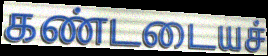
கண்டடையச்